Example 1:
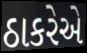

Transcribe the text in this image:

ઠાકરેએ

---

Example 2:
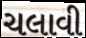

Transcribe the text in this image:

ચલાવી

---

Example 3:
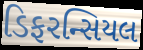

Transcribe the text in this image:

ડિફરન્સિયલ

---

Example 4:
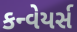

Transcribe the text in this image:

કન્વેયર્સ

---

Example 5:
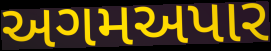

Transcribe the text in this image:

અગમઅપાર